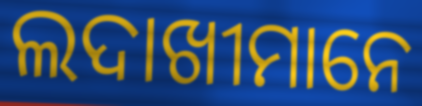
ଲଦାଖୀମାନେ